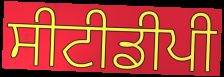
ਸੀਟੀਡੀਪੀ